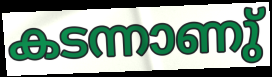
കടന്നാണു്